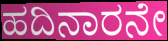
ಹದಿನಾರನೇ